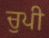
ਚੁਪੀ